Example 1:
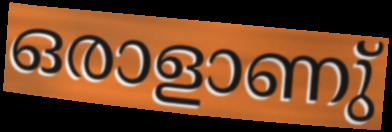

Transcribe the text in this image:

ഒരാളാണു്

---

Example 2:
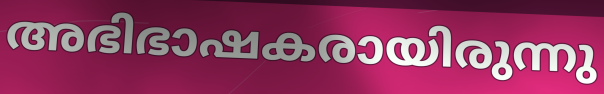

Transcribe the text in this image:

അഭിഭാഷകരായിരുന്നു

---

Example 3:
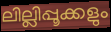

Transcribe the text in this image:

ലില്ലിപ്പൂക്കളും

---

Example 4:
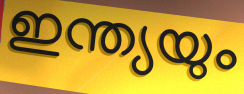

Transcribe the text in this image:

ഇന്ത്യയും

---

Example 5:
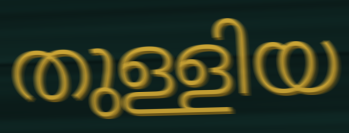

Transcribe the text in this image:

തുള്ളിയ